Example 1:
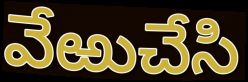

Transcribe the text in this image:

వేఱుచేసి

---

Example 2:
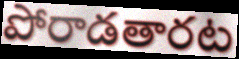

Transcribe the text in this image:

పోరాడతారట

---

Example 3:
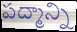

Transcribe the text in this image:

పద్మాన్ని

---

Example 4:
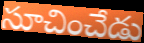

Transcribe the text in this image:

సూచించేడు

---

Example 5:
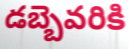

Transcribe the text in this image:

డబ్బెవరికి